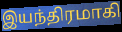
இயந்திரமாகி